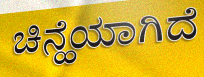
ಚಿನ್ಹೆಯಾಗಿದೆ